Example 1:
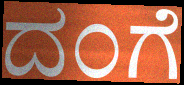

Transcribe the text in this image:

ದಂಗೆ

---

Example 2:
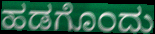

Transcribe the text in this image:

ಹಡಗೊಂದು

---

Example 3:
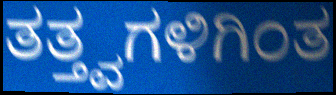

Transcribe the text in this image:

ತತ್ತ್ವಗಳಿಗಿಂತ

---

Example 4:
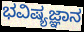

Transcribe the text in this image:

ಭವಿಷ್ಯಜ್ಞಾನ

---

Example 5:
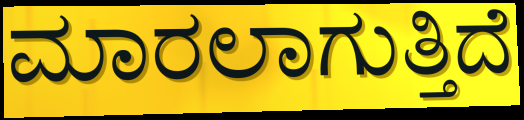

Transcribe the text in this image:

ಮಾರಲಾಗುತ್ತಿದೆ